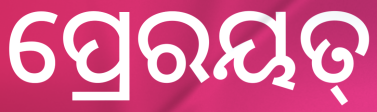
ପ୍ରେରୟତ୍